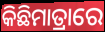
କିଛିମାତ୍ରାରେ